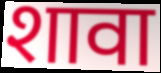
शावा